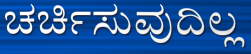
ಚರ್ಚಿಸುವುದಿಲ್ಲ